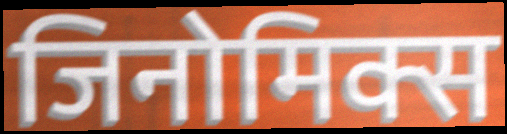
जिनोमिक्स